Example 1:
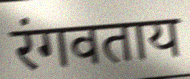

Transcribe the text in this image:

रंगवताय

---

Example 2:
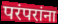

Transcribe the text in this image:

परंपरांना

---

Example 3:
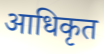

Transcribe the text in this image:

आधिकृत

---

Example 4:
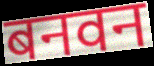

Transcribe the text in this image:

बनवन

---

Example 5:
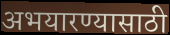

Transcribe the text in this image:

अभयारण्यासाठी